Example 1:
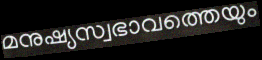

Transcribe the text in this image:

മനുഷ്യസ്വഭാവത്തെയും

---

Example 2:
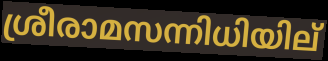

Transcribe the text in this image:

ശ്രീരാമസന്നിധിയില്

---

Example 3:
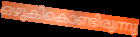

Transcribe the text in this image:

ഒഴുകികൊണ്ടിരുന്നു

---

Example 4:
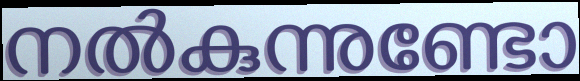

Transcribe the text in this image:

നൽകുന്നുണ്ടോ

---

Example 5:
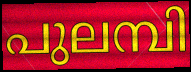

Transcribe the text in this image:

പുലമ്പി